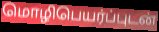
மொழிபெயர்ப்புடன்